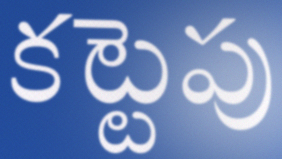
కట్టెపు